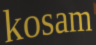
kosam